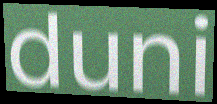
duni